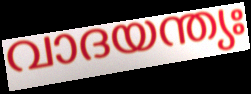
വാദയന്ത്യഃ